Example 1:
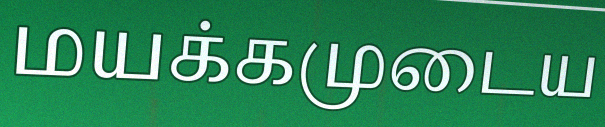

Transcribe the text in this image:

மயக்கமுடைய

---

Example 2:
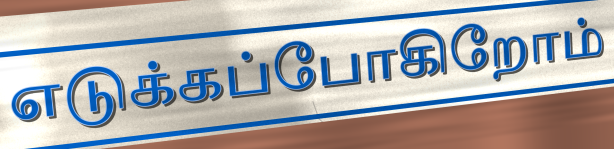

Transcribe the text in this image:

எடுக்கப்போகிறோம்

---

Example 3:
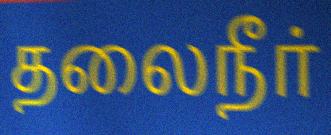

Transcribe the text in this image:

தலைநீர்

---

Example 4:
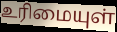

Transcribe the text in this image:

உரிமையுள்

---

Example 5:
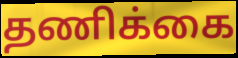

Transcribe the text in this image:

தணிக்கை